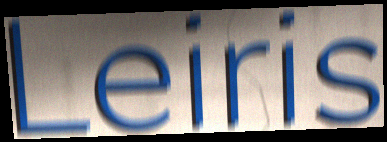
Leiris